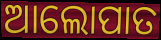
ଆଲୋପାତ